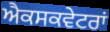
ਐਕਸਕਵੇਟਰਾਂ